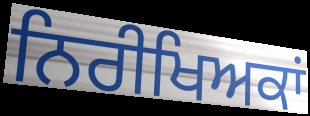
ਨਿਰੀਖਿਅਕਾਂ